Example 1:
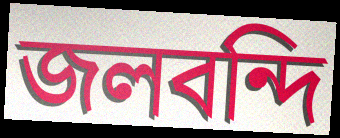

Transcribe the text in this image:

জলবন্দি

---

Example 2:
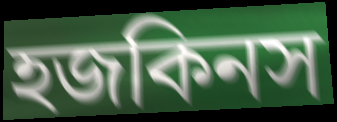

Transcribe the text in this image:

হজকিনস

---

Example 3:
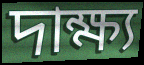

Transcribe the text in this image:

দাক্ষ্য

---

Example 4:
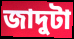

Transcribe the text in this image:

জাদুটা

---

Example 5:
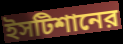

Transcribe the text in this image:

ইসটিশানের